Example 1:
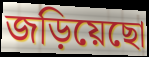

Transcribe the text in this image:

জড়িয়েছো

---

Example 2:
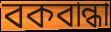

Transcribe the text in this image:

বকবান্ধা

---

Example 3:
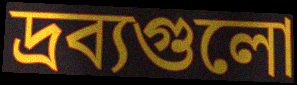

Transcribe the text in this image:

দ্রব্যগুলো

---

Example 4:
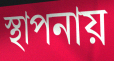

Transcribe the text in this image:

স্থাপনায়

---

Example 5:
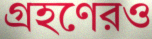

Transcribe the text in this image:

গ্রহণেরও